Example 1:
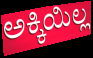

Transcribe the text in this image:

ಅಕ್ಕಿಯಿಲ್ಲ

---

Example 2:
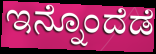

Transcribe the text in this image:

ಇನ್ನೊಂದೆಡೆ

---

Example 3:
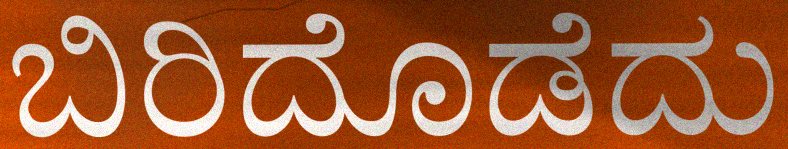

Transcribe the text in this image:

ಬಿರಿದೊಡೆದು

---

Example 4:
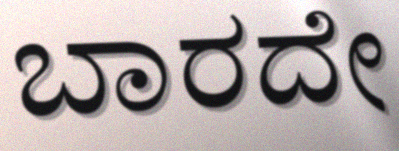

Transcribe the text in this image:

ಬಾರದೇ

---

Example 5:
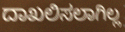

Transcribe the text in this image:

ದಾಖಲಿಸಲಾಗಿಲ್ಲ